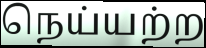
நெய்யற்ற